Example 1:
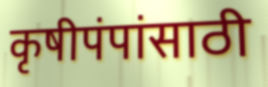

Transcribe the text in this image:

कृषीपंपांसाठी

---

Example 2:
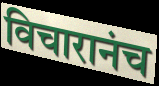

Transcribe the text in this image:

विचारानंच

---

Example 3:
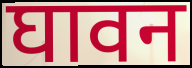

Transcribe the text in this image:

घावन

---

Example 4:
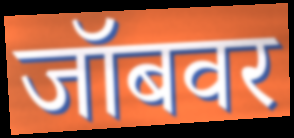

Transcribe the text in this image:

जॉबवर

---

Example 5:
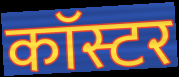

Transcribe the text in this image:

कॉस्टर